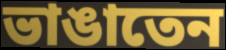
ভাঙাতেন